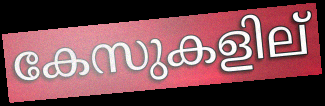
കേസുകളില്